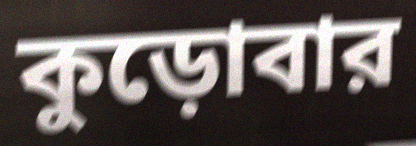
কুড়োবার